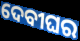
ଦେବୀଘର